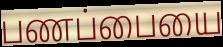
பணப்பையை